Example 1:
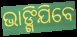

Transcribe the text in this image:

ଭାଙ୍ଗିଯିବେ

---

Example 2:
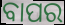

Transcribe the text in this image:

ବାପର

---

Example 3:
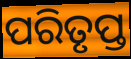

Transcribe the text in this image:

ପରିତୃପ୍ତ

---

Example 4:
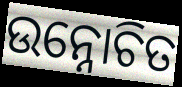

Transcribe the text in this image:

ଉନ୍ନୋଚିତ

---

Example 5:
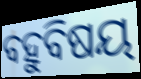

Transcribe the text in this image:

ବହୁବିଷୟ